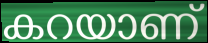
കറയാണ്